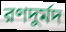
রণদুর্মদ